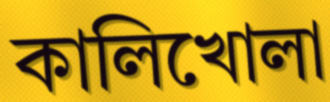
কালিখোলা